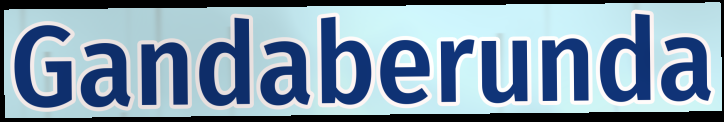
Gandaberunda